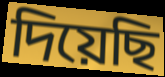
দিয়েছি